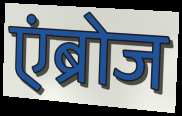
एंब्रोज